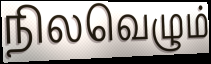
நிலவெழும்